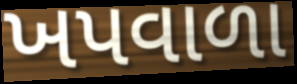
ખપવાળા